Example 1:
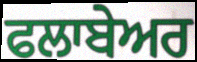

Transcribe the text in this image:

ਫਲਾਬੇਅਰ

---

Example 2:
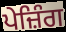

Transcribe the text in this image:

ਪੇਜ਼ਿੰਗ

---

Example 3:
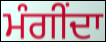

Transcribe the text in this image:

ਮੰਗੀਂਦਾ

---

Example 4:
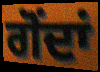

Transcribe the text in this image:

ਗੋਂਦਾਂ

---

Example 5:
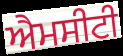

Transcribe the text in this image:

ਐਮਸੀਟੀ